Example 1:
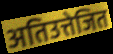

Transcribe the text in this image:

अतिउत्तेजित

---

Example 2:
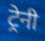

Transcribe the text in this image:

ट्रेनी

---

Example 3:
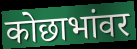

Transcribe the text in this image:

कोछाभांवर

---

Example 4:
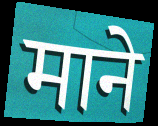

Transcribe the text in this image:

माने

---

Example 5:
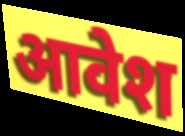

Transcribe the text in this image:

आवेश